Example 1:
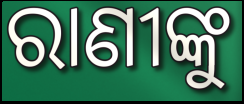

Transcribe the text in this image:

ରାଣୀଙ୍କୁ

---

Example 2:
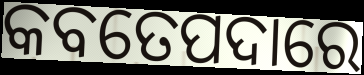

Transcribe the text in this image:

କବତେପଦାରେ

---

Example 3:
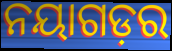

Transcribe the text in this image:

ନୟାଗଡ଼ର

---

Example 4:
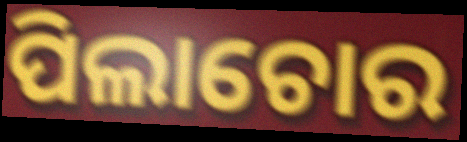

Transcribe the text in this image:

ପିଲାଚୋର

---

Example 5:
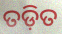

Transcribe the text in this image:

ତଡ଼ିତ